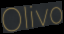
Olivo